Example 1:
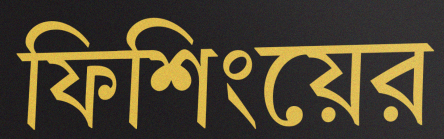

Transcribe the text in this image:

ফিশিংয়ের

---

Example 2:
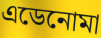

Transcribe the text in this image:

এডেনোমা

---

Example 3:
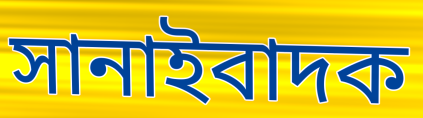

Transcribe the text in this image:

সানাইবাদক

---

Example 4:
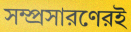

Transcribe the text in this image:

সম্প্রসারণেরই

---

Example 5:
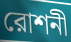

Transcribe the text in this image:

রোশনী